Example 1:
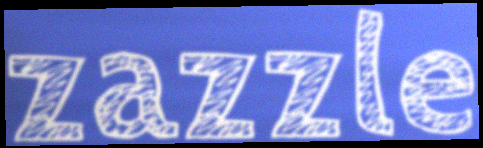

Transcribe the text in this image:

zazzle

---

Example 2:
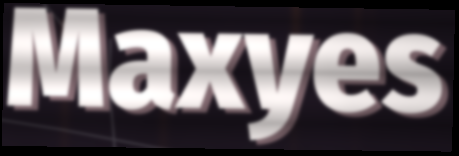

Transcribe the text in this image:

Maxyes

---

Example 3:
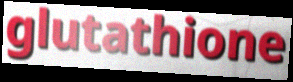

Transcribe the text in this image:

glutathione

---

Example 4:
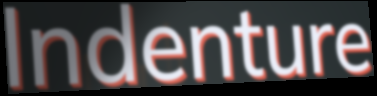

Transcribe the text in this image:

Indenture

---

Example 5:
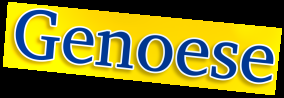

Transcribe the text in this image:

Genoese